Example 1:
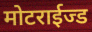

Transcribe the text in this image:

मोटराईज्ड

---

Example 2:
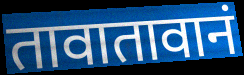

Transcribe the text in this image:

तावातावानं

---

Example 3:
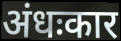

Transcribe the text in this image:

अंधःकार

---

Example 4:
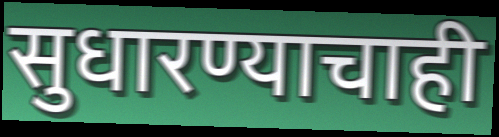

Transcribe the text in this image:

सुधारण्याचाही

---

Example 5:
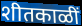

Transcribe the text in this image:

शीतकाळीं